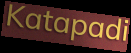
Katapadi